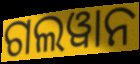
ଗଲୱାନ